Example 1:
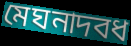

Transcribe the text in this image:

মেঘনাদবধ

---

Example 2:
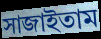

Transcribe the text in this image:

সাজাইতাম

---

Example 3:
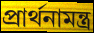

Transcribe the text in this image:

প্রার্থনামন্ত্র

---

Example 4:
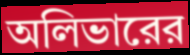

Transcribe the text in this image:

অলিভারের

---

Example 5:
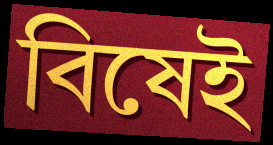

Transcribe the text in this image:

বিষেই